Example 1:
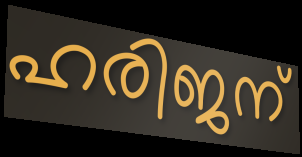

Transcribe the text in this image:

ഹരിജന്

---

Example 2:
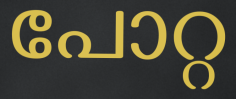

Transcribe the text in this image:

പോറ്റ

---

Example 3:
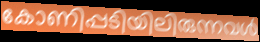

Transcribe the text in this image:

കോണിപ്പടിയിലിരുന്നവൾ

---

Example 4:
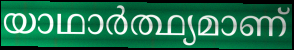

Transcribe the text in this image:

യാഥാർത്ഥ്യമാണ്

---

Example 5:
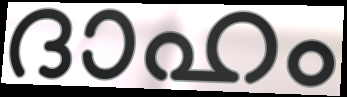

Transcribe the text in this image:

ദാഹം